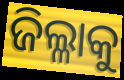
ଜିଲ୍ଳାକୁ